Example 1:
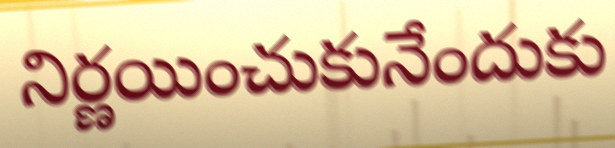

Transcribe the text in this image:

నిర్ణయించుకునేందుకు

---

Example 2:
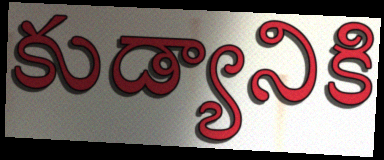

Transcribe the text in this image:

కుడ్యానికి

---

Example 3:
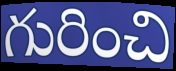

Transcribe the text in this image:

గురించి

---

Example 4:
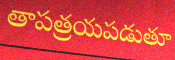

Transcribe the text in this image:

తాపత్రయపడుతూ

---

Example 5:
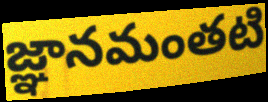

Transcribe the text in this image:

జ్ఞానమంతటి